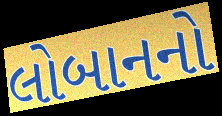
લોબાનનો